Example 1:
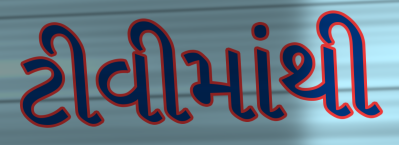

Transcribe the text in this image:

ટીવીમાંથી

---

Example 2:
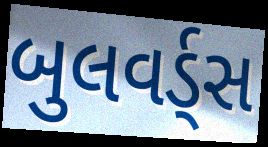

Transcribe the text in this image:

બુલવર્ડ્સ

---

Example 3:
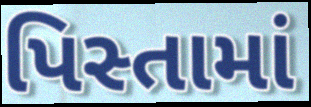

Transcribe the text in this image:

પિસ્તામાં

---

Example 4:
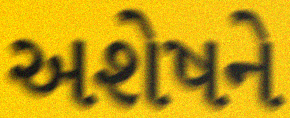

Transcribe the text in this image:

અશેષને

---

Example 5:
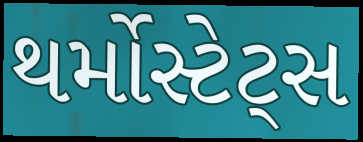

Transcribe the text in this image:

થર્મોસ્ટેટ્સ